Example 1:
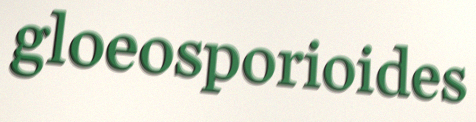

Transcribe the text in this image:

gloeosporioides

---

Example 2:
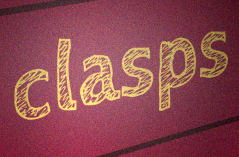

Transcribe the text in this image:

clasps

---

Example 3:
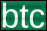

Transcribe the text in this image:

btc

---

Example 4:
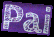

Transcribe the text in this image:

Pai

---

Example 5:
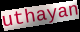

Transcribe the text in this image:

uthayan